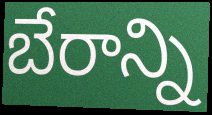
బేరాన్ని